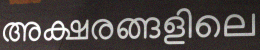
അക്ഷരങ്ങളിലെ